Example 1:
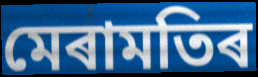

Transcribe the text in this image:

মেৰামতিৰ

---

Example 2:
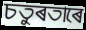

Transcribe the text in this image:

চতুৰতাৰে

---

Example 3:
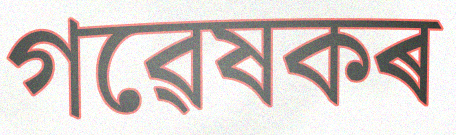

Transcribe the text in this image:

গৱেষকৰ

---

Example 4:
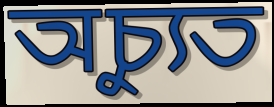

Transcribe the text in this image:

অচ্যুত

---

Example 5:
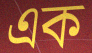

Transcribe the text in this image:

এক